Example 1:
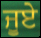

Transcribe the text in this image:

ਜੂਏ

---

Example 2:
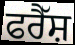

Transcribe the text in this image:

ਫਰੈੱਸ਼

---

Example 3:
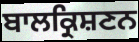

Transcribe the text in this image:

ਬਾਲਕ੍ਰਿਸ਼ਣਨ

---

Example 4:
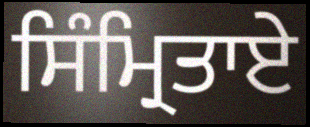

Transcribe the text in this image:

ਸਿੰਮ੍ਰਿਤਾਏ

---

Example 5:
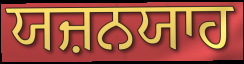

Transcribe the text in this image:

ਯਜ਼ਨਯਾਹ